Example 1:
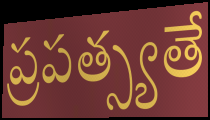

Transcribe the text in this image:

ప్రపత్స్యతే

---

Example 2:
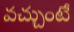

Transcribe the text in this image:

వచ్చుంటే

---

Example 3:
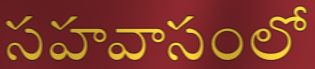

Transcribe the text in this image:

సహవాసంలో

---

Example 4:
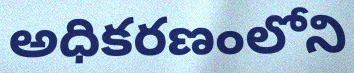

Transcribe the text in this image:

అధికరణంలోని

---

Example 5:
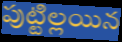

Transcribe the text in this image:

పుట్టిల్లయిన